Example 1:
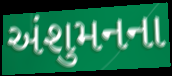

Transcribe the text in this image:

અંશુમનના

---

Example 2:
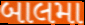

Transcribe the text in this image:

બાલમા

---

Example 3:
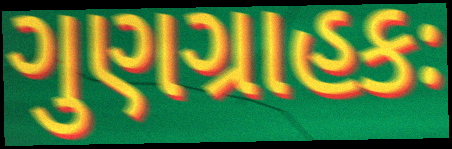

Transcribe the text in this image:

ગુણગ્રાહકઃ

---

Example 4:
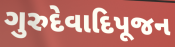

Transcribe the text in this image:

ગુરુદેવાદિપૂજન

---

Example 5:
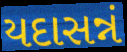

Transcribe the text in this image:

યદાસન્નં